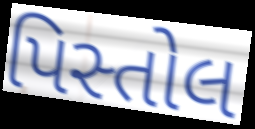
પિસ્તોલ